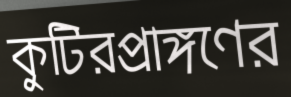
কুটিরপ্রাঙ্গণের